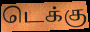
டெக்கு